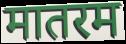
मातरम